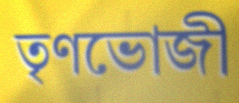
তৃণভোজী